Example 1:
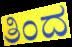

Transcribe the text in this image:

ತಿಂದ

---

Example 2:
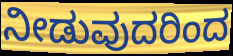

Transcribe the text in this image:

ನೀಡುವುದರಿಂದ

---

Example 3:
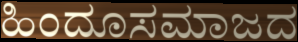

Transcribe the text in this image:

ಹಿಂದೂಸಮಾಜದ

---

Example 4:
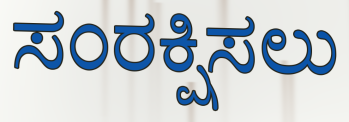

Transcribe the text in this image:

ಸಂರಕ್ಷಿಸಲು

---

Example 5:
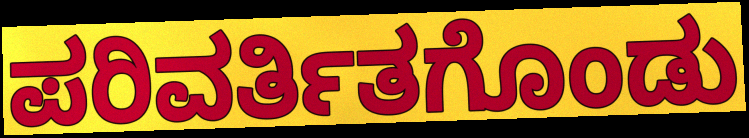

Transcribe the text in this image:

ಪರಿವರ್ತಿತಗೊಂಡು